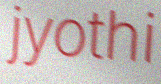
jyothi